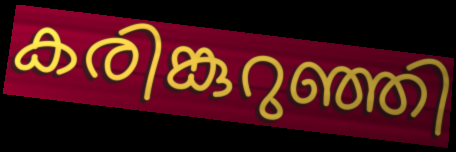
കരിങ്കുറുഞ്ഞി